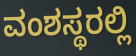
ವಂಶಸ್ಥರಲ್ಲಿ